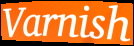
Varnish